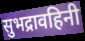
सुभद्रावहिनी